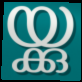
യ്ക്കു